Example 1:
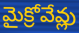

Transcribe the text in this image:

మైక్రోవేవ్లు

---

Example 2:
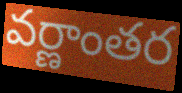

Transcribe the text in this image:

వర్ణాంతర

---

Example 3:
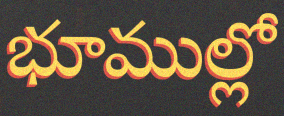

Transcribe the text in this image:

భూముల్లో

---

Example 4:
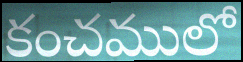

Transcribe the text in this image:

కంచములో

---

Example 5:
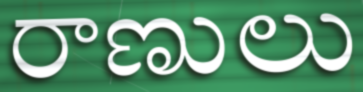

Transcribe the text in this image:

రాణులు